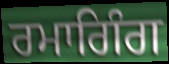
ਰਮਾਗਿੰਗ